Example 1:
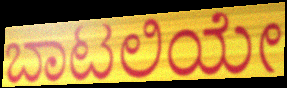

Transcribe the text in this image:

ಬಾಟಲಿಯೇ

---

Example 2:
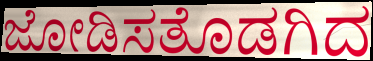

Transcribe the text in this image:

ಜೋಡಿಸತೊಡಗಿದ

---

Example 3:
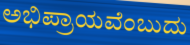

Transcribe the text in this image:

ಅಭಿಪ್ರಾಯವೆಂಬುದು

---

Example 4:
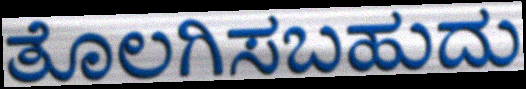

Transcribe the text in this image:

ತೊಲಗಿಸಬಹುದು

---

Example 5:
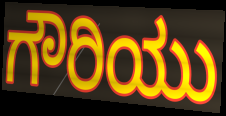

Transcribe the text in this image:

ಗೌರಿಯು